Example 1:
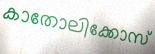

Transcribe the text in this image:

കാതോലിക്കോസ്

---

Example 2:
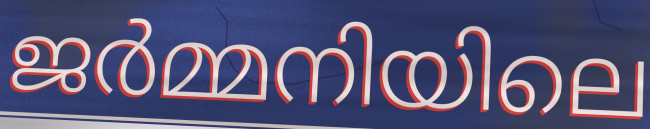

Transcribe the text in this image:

ജർമ്മനിയിലെ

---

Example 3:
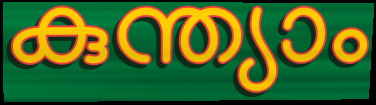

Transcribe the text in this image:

കുന്ത്യാം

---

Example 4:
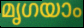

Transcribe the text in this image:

മൃഗയാം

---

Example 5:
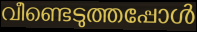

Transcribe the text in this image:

വീണ്ടെടുത്തപ്പോൾ